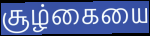
சூழ்கையை